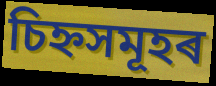
চিহ্নসমূহৰ